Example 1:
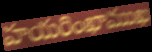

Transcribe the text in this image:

హయరింఖాముఖ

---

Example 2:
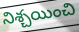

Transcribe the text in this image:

నిశ్చయించి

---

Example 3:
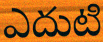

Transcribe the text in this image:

ఎదుటి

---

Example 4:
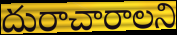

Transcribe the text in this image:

దురాచారాలని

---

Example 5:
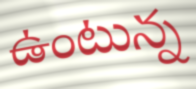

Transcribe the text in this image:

ఉంటున్న